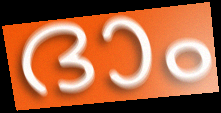
ദാം